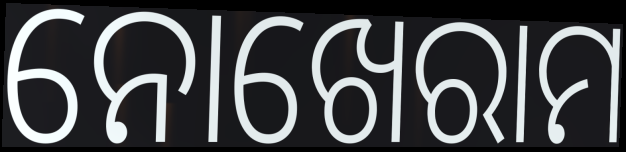
ନୋଖେରାମ